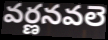
వర్ణనవలె